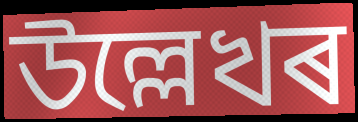
উল্লেখৰ